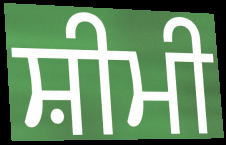
ਸ਼ੀਮੀ